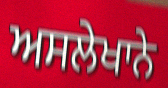
ਅਸਲੇਖਾਨੇ